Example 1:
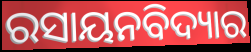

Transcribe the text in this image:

ରସାୟନବିଦ୍ୟାର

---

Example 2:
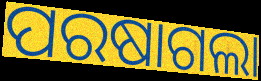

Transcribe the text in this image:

ପରଷାଗଲା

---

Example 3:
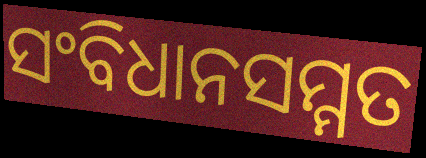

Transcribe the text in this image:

ସଂବିଧାନସମ୍ମତ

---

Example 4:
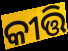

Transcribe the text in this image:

କୀତ୍ତି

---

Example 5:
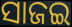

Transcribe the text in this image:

ସାଜଇ